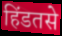
हिंडतसे